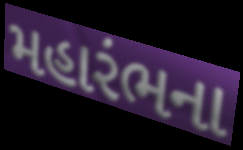
મહારંભના